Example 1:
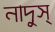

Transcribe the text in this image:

নাদুস্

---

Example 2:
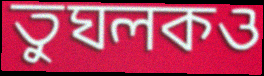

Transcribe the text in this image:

তুঘলকও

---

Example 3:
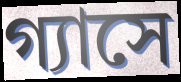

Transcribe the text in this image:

গ্যাসে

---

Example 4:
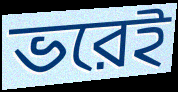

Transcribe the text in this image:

ভরেই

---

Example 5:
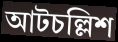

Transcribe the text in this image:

আটচল্লিশ